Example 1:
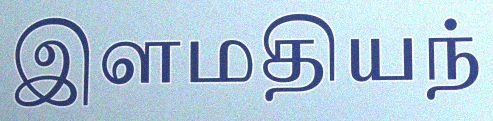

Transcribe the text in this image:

இளமதியந்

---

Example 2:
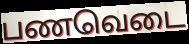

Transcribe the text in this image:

பணவெடை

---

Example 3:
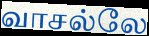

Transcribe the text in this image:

வாசல்லே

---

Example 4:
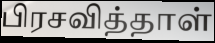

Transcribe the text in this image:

பிரசவித்தாள்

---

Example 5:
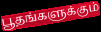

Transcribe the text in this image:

பூதங்களுக்கும்